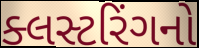
ક્લસ્ટરિંગનો